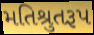
મતિશ્રુતરૂપ